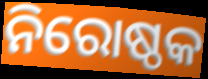
ନିରୋଷ୍ଠକ